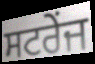
ਸਟਰੇਂਜ